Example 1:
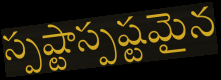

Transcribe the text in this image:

స్పష్టాస్పష్టమైన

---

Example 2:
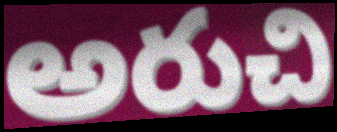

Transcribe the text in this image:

అరుచి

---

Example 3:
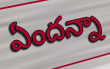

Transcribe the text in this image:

ఏందన్నా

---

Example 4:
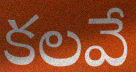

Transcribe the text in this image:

కలవే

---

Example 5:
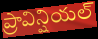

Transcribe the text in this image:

ప్రావిన్షియల్